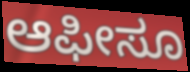
ಆಫೀಸೂ